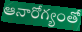
ఆనారోగ్యంతో